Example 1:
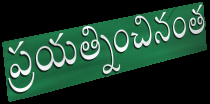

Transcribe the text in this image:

ప్రయత్నించినంత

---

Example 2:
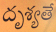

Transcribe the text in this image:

దృశ్యతే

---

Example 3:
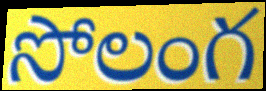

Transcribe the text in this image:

సోలంగ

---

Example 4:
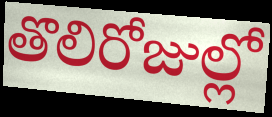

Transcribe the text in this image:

తొలిరోజుల్లో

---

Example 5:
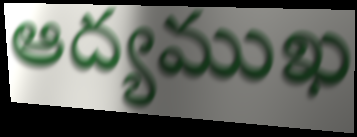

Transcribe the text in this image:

ఆద్యముఖ